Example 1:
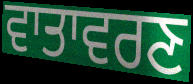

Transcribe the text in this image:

ਵਾਤਾਵਰਣ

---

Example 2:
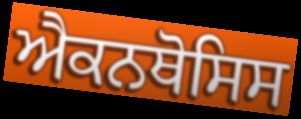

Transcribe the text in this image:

ਐਕਨਥੋਸਿਸ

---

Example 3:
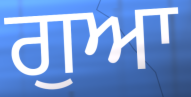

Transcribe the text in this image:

ਗੁਆ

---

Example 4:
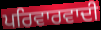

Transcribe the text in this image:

ਪਰਿਵਾਰਵਾਦੀ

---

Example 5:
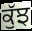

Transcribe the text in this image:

ਕੁੱਝ